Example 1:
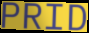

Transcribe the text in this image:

PRID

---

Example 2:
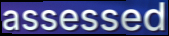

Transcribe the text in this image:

assessed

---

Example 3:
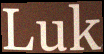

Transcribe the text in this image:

Luk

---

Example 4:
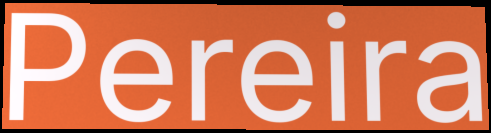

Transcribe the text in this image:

Pereira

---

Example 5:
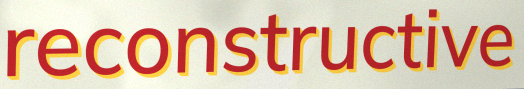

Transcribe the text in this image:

reconstructive